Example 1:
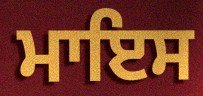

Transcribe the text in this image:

ਮਾਇਸ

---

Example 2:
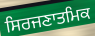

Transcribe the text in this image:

ਸਿਰਜਣਾਤਮਿਕ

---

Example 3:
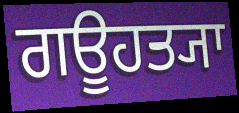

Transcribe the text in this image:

ਗਊਹਤ੍ਯਾ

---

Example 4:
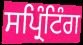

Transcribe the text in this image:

ਸਪ੍ਰਿੰਟਿੰਗ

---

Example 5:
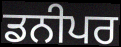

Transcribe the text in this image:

ਡਨੀਪਰ